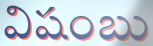
విషంబు